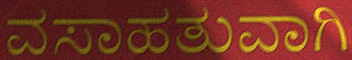
ವಸಾಹತುವಾಗಿ